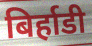
बिर्हाडी